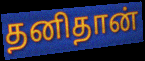
தனிதான்